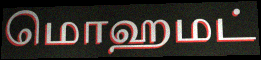
மொஹமட்